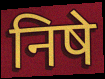
निषे